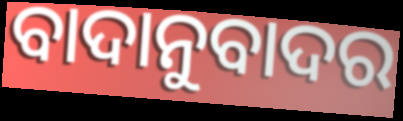
ବାଦାନୁବାଦର